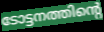
ടോട്ടനത്തിന്റെ